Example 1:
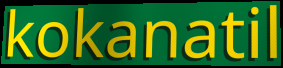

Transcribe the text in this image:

kokanatil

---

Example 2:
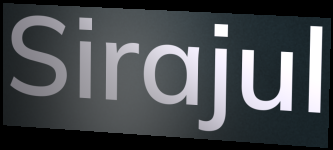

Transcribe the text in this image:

Sirajul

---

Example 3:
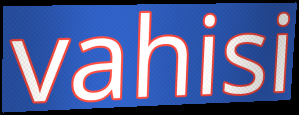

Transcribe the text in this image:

vahisi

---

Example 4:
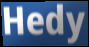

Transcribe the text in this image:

Hedy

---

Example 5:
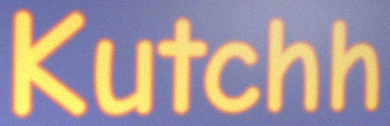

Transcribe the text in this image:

Kutchh